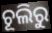
ଚୂଲିରୁ